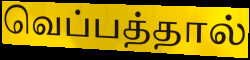
வெப்பத்தால்